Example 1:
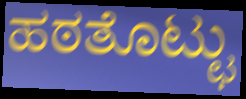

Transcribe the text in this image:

ಹಠತೊಟ್ಟು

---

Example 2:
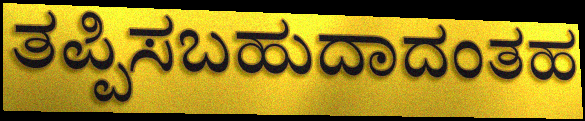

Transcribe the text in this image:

ತಪ್ಪಿಸಬಹುದಾದಂತಹ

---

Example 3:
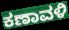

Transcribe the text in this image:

ಕಣಾವಳಿ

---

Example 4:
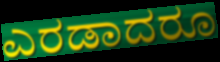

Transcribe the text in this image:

ಎರಡಾದರೂ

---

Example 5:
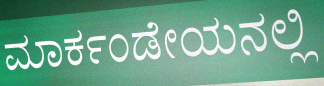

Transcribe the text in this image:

ಮಾರ್ಕಂಡೇಯನಲ್ಲಿ